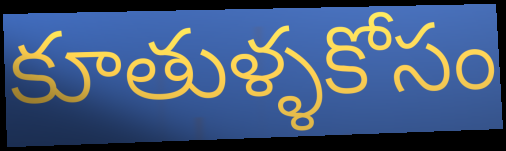
కూతుళ్ళకోసం